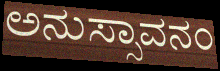
ಅನುಸ್ಸಾವನಂ